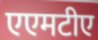
एएमटीए